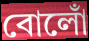
বোলোঁ